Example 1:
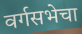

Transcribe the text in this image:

वर्गसभेचा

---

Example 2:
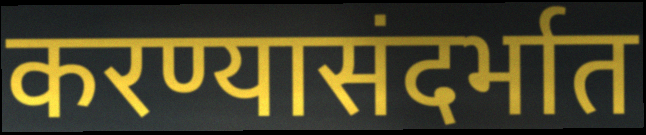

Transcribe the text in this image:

करण्यासंदर्भात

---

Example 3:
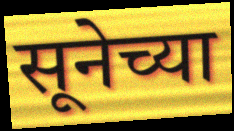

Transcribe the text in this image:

सूनेच्या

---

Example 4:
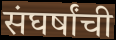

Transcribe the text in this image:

संघर्षांची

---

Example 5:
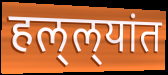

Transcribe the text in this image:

हल्ल्यांत